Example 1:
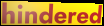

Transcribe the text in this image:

hindered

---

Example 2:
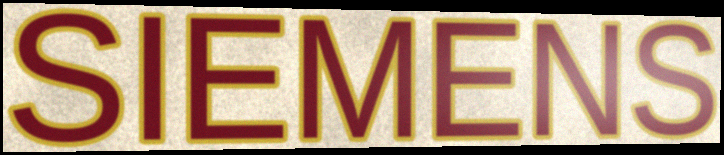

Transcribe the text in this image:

SIEMENS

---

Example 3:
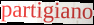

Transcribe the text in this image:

partigiano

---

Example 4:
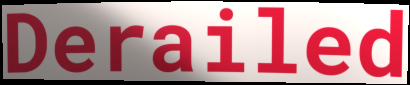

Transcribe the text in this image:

Derailed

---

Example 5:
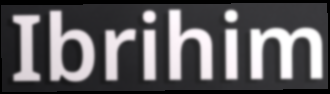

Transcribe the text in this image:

Ibrihim